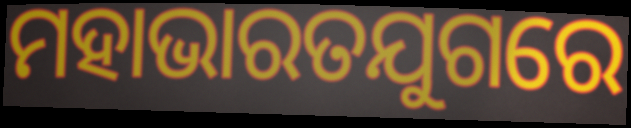
ମହାଭାରତଯୁଗରେ